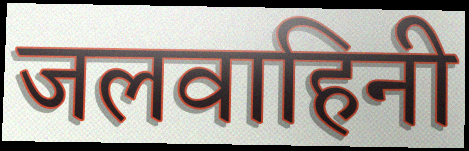
जलवाहिनी